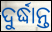
ଦୁର୍ଦ୍ଧାନ୍ତ